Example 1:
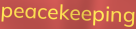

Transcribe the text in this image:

peacekeeping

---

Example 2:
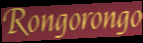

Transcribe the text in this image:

Rongorongo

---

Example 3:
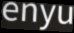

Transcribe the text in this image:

enyu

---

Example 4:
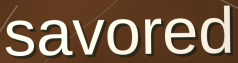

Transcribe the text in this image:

savored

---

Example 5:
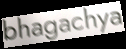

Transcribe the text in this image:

bhagachya